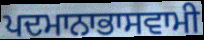
ਪਦਮਾਨਾਭਾਸਵਾਮੀ